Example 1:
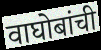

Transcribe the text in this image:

वाघोबांची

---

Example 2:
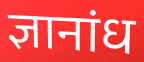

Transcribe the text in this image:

ज्ञानांध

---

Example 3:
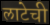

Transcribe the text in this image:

लाटेची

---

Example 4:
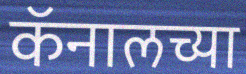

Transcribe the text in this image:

कॅनालच्या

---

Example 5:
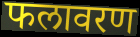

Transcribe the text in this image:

फलावरण